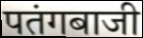
पतंगबाजी